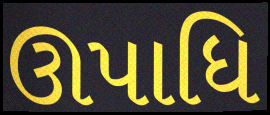
ઊપાધિ